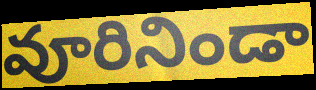
వూరినిండా